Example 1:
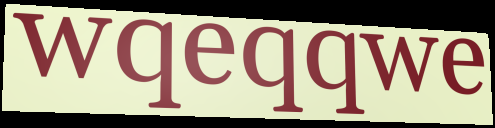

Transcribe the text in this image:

wqeqqwe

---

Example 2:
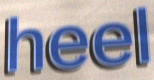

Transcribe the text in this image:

heel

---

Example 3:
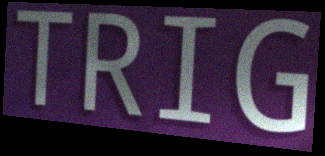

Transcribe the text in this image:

TRIG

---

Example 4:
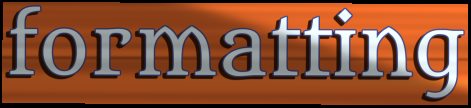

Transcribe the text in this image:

formatting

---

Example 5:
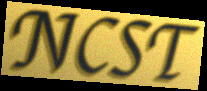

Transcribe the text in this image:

NCST